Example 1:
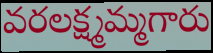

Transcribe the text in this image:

వరలక్ష్మమ్మగారు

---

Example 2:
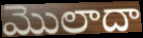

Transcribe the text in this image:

మొలాదా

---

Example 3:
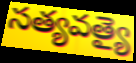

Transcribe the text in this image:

సత్యవత్యై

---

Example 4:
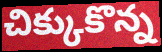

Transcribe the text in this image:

చిక్కుకొన్న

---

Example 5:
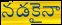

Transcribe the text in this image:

నడకైనా